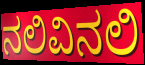
ನಲಿವಿನಲಿ